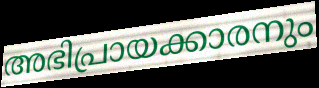
അഭിപ്രായക്കാരനും